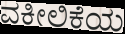
ವಕೀಲಿಕೆಯ